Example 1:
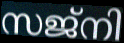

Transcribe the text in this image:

സജ്നി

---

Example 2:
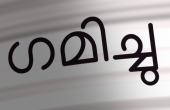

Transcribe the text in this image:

ഗമിച്ചു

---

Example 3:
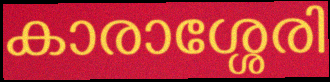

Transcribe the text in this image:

കാരാശ്ശേരി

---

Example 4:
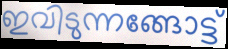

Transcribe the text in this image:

ഇവിടുന്നങ്ങോട്ട്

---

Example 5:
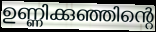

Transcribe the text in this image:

ഉണ്ണിക്കുഞ്ഞിന്റെ